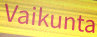
Vaikunta